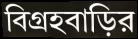
বিগ্রহবাড়ির